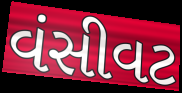
વંસીવટ